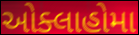
ઓક્લાહોમા